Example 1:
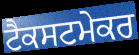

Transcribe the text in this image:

ਟੈਕਸਟਮੇਕਰ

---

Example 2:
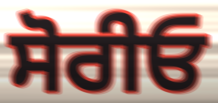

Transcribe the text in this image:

ਸੋਰੀਓ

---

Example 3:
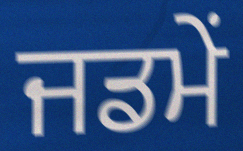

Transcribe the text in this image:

ਜਡਮੇਂ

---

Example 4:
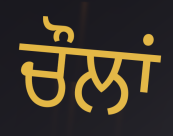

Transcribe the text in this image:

ਚੌਲਾਂ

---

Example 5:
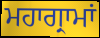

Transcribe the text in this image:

ਮਹਾਗ੍ਰਾਮਾਂ